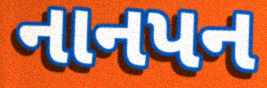
નાનપન